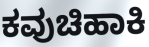
ಕವುಚಿಹಾಕಿ